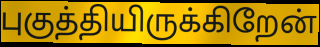
புகுத்தியிருக்கிறேன்